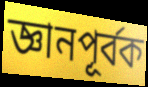
জ্ঞানপূর্বক